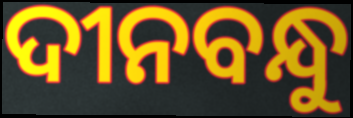
ଦୀନବନ୍ଧୁ